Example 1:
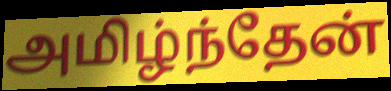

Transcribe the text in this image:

அமிழ்ந்தேன்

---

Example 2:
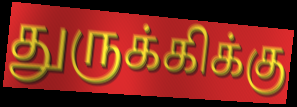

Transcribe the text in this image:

துருக்கிக்கு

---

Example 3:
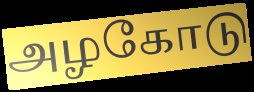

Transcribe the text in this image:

அழகோடு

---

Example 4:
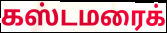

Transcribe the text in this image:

கஸ்டமரைக்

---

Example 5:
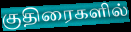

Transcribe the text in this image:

குதிரைகளில்